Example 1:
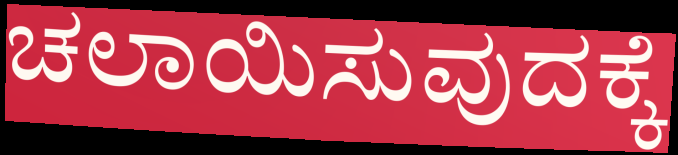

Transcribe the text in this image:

ಚಲಾಯಿಸುವುದಕ್ಕೆ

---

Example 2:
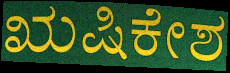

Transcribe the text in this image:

ಋಷಿಕೇಶ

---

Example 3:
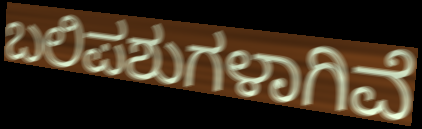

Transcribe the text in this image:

ಬಲಿಪಶುಗಳಾಗಿವೆ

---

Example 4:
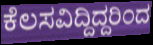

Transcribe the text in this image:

ಕೆಲಸವಿದ್ದಿದ್ದರಿಂದ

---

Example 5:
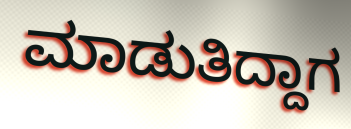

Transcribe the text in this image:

ಮಾಡುತಿದ್ದಾಗ